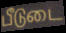
பீடுடை